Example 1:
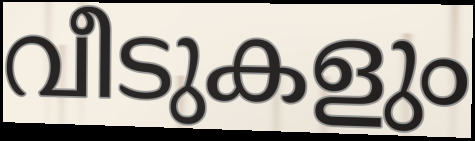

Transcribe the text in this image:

വീടുകളും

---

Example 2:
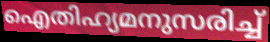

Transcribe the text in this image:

ഐതിഹ്യമനുസരിച്ച്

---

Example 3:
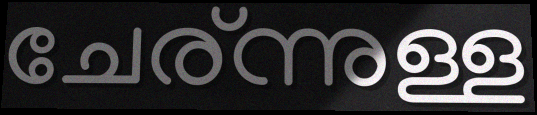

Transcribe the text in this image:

ചേര്ന്നുള്ള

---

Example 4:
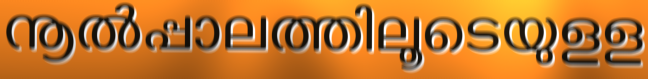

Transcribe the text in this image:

നൂൽപ്പാലത്തിലൂടെയുളള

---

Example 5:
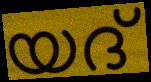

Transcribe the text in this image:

യദ്